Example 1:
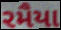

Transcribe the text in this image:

રમૈયા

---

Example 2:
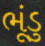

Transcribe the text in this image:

ભૂંડુ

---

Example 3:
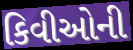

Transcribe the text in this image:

કિવીઓની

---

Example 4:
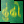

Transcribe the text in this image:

ઢુંઢો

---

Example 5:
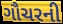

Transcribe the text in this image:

ગૌચરની